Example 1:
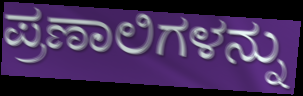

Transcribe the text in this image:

ಪ್ರಣಾಲಿಗಳನ್ನು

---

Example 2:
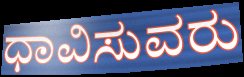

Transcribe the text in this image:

ಧಾವಿಸುವರು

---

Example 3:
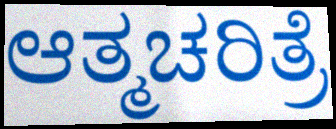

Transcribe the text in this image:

ಆತ್ಮಚರಿತ್ರೆ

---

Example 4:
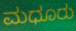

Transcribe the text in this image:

ಮಧೂರು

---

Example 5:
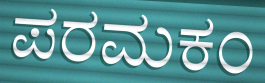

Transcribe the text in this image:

ಪರಮಕಂ